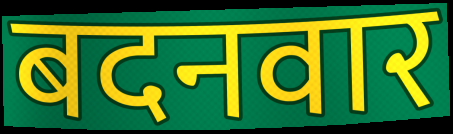
बदनवार